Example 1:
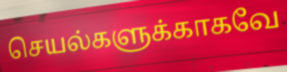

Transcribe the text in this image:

செயல்களுக்காகவே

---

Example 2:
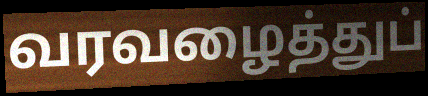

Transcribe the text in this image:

வரவழைத்துப்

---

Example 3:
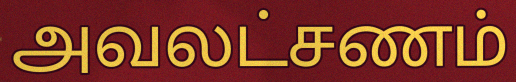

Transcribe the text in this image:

அவலட்சணம்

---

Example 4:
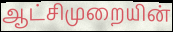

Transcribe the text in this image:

ஆட்சிமுறையின்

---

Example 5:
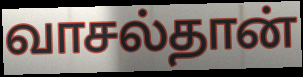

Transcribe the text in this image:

வாசல்தான்